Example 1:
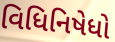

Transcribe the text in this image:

વિધિનિષેધો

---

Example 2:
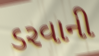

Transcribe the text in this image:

ડરવાની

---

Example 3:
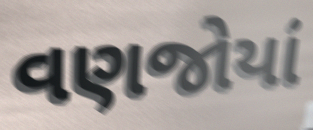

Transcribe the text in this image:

વણજોયાં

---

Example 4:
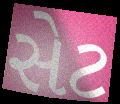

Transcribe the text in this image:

સેટ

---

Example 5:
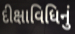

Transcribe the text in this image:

દીક્ષાવિધિનું